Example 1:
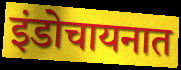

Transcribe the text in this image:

इंडोचायनात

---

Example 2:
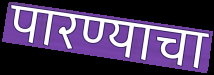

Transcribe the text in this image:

पारण्याचा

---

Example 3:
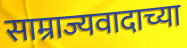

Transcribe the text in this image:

साम्राज्यवादाच्या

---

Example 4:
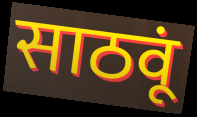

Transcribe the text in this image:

साठवूं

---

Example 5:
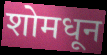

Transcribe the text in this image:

शोमधून